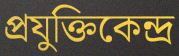
প্রযুক্তিকেন্দ্র